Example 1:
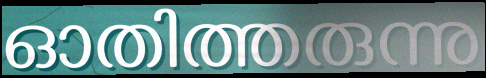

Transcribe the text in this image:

ഓതിത്തരുന്നു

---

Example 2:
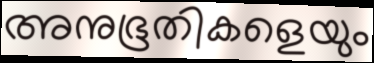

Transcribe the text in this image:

അനുഭൂതികളെയും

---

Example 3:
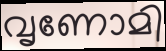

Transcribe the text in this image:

വൃണോമി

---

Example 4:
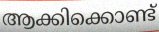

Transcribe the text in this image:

ആക്കിക്കൊണ്ട്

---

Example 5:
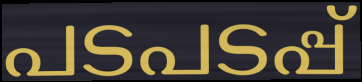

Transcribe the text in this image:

പടപടപ്പ്